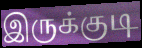
இருக்குடி